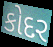
કોદર